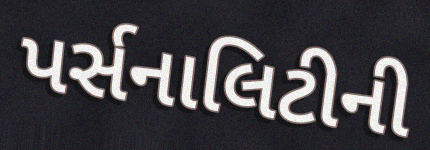
પર્સનાલિટીની